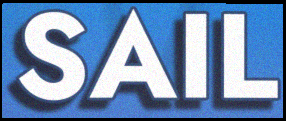
SAIL